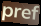
pref